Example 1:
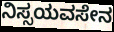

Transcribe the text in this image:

ನಿಸ್ಸಯವಸೇನ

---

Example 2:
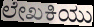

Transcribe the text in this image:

ಲೇಖಕಿಯು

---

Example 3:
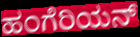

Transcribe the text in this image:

ಹಂಗೆರಿಯನ್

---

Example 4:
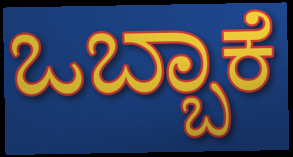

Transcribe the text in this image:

ಒಬ್ಬಾಕೆ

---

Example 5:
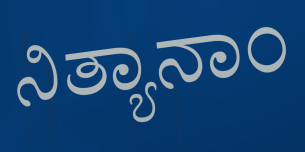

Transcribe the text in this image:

ನಿತ್ಯಾನಾಂ